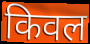
किवल